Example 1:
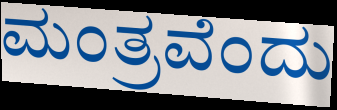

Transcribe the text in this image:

ಮಂತ್ರವೆಂದು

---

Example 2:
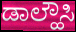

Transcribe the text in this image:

ಡಾಲ್ಹೌಸಿ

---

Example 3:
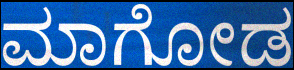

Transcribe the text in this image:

ಮಾಗೋಡ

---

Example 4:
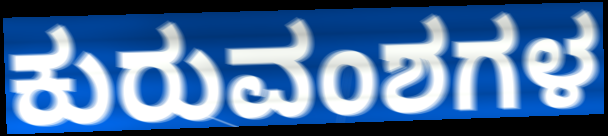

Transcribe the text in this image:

ಕುರುವಂಶಗಳ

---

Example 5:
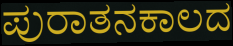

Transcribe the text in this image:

ಪುರಾತನಕಾಲದ